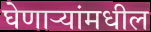
घेणाऱ्यांमधील